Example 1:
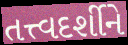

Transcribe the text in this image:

તત્ત્વદર્શીને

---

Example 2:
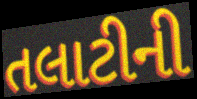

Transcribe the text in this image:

તલાટીની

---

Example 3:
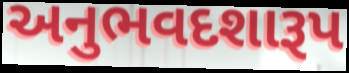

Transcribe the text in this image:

અનુભવદશારૂપ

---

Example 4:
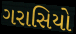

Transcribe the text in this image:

ગરાસિયો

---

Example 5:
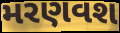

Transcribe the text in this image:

મરણવશ